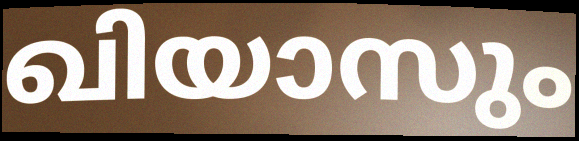
ഖിയാസും